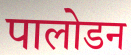
पालोडन